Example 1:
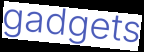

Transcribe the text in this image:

gadgets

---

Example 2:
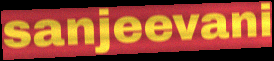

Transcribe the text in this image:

sanjeevani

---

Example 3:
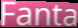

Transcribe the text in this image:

Fanta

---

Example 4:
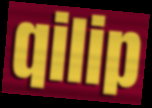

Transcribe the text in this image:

qilip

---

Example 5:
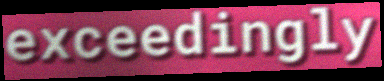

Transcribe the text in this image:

exceedingly